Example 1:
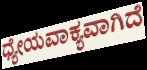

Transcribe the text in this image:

ಧ್ಯೇಯವಾಕ್ಯವಾಗಿದೆ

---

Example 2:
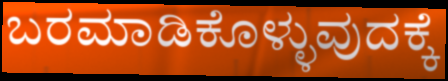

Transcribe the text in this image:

ಬರಮಾಡಿಕೊಳ್ಳುವುದಕ್ಕೆ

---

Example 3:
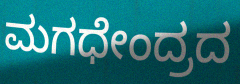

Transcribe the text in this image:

ಮಗಧೇಂದ್ರದ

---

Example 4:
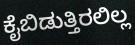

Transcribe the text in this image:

ಕೈಬಿಡುತ್ತಿರಲಿಲ್ಲ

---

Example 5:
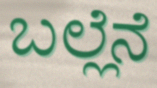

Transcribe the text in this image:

ಬಲ್ಲೆನೆ